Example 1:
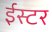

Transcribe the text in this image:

ईस्टर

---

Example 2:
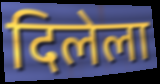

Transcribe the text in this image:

दिलेला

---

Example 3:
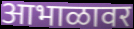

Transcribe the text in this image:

आभाळावर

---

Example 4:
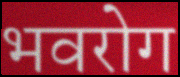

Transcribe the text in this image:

भवरोग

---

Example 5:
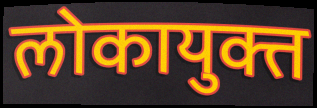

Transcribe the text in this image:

लोकायुक्त